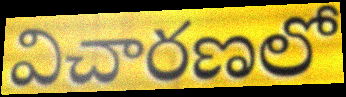
విచారణలో